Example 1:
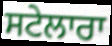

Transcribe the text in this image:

ਸਟੇਲਾਰਾ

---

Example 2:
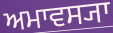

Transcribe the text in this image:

ਅਮਾਵਸ੍ਯਾ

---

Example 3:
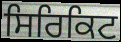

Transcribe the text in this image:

ਸਿਰਿਕਿਟ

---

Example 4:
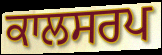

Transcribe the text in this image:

ਕਾਲਸਰਪ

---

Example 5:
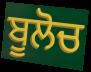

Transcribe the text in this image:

ਬੂਲੋਚ